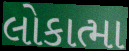
લોકાત્મા